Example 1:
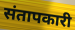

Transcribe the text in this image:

संतापकारी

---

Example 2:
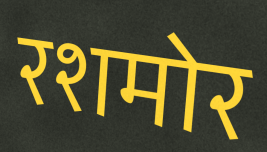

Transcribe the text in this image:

रशमोर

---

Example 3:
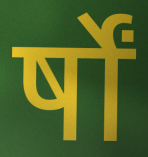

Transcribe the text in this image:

र्षों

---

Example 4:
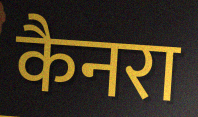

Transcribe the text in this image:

कैनरा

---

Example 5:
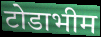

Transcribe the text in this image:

टोडाभीम